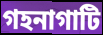
গহনাগাটি